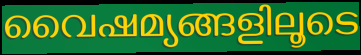
വൈഷമ്യങ്ങളിലൂടെ